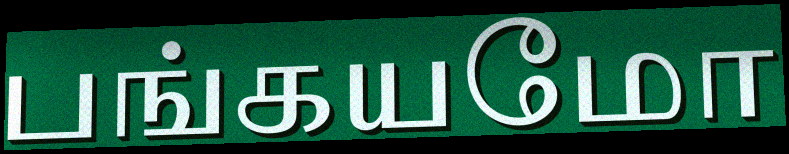
பங்கயமோ